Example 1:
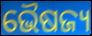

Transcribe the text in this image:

ଭୈଷଜ୍ୟ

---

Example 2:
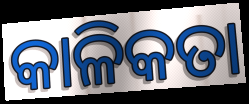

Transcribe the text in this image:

କାଳିକତା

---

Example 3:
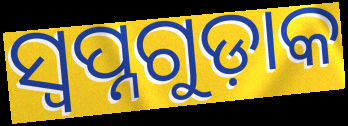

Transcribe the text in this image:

ସ୍ୱପ୍ନଗୁଡ଼ାକ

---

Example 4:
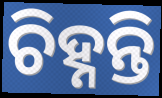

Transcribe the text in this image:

ଚିହ୍ନନ୍ତି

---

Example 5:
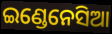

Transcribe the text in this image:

ଇଣ୍ଡେନେସିଆ